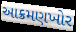
આક્રમણખોર